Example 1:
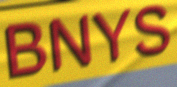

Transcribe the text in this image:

BNYS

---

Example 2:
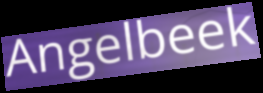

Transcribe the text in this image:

Angelbeek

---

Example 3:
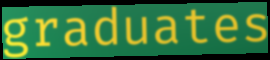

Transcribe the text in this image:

graduates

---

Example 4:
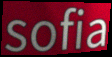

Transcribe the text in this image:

sofia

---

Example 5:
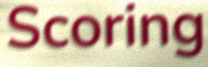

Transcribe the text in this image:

Scoring